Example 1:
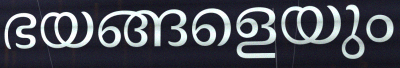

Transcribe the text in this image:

ഭയങ്ങളെയും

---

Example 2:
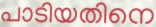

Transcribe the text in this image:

പാടിയതിനെ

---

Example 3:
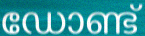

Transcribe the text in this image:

ഡോണ്ട്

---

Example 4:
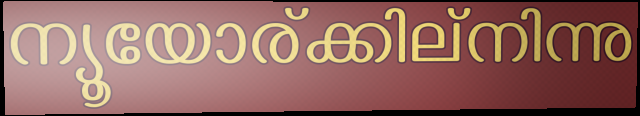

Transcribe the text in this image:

ന്യൂയോര്ക്കില്നിന്നു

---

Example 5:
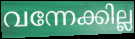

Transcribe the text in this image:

വന്നേക്കില്ല